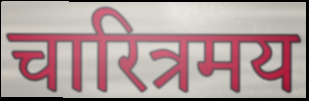
चारित्रमय